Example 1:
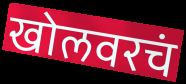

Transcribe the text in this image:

खोलवरचं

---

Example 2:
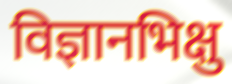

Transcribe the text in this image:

विज्ञानभिक्षु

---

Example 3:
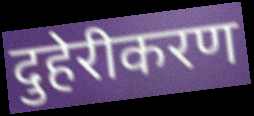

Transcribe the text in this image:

दुहेरीकरण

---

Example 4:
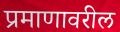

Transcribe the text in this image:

प्रमाणावरील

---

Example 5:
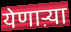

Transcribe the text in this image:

येणाऱ्‍या